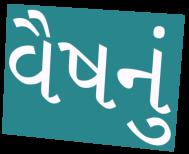
વૈષનું